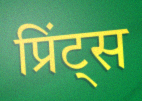
प्रिंट्स